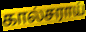
கால்சராய்